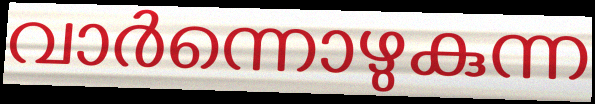
വാർന്നൊഴുകുന്ന